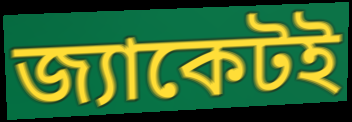
জ্যাকেটই